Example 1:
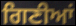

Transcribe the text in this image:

ਗਿਣੀਆਂ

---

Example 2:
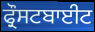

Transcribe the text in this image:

ਫ੍ਰੌਸਟਬਾਈਟ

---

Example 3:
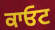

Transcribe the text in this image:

ਕਾਓਟ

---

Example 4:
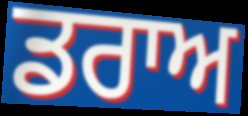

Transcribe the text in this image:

ਡਰਾਅ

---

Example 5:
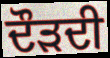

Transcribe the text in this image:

ਦੌੜਦੀ